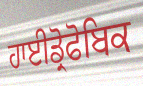
ਹਾਈਡ੍ਰੋਫੋਬਿਕ